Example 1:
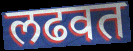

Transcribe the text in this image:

लढवत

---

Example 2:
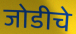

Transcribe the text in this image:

जोडीचे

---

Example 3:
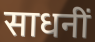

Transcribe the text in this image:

साधनीं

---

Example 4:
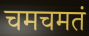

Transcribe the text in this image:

चमचमतं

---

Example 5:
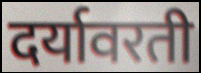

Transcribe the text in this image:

दर्यावरती